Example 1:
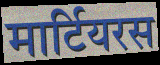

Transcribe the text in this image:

मार्टियरस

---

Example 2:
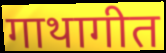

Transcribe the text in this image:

गाथागीत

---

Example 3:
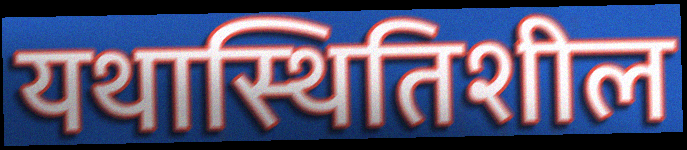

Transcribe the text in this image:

यथास्थितिशील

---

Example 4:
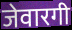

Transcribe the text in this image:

जेवारगी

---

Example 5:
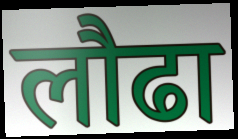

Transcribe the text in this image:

लौढा